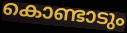
കൊണ്ടാടും